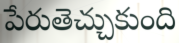
పేరుతెచ్చుకుంది